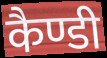
कैण्डी